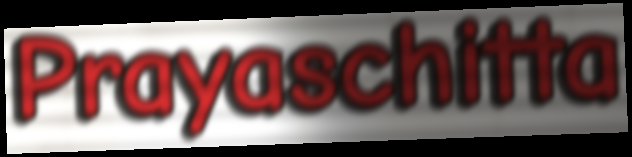
Prayaschitta